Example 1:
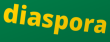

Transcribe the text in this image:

diaspora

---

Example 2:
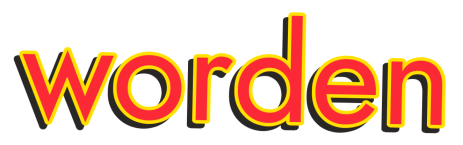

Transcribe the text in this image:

worden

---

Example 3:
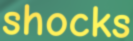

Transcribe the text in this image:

shocks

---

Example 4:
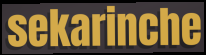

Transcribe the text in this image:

sekarinche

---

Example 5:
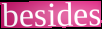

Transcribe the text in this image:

besides